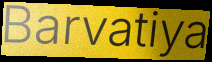
Barvatiya